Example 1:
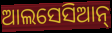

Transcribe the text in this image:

ଆଲସେସିଆନ୍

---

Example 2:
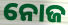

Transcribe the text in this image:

ନୋଜ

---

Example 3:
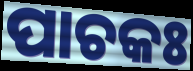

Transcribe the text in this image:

ପାଚକଃ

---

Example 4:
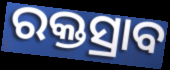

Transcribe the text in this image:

ରକ୍ତସ୍ରାବ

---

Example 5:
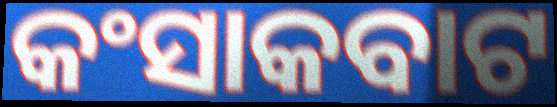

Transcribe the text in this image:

କଂସାକବାଟ